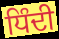
ਧਿੰਦੀ